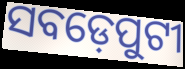
ସବଡ଼େପୁଟୀ